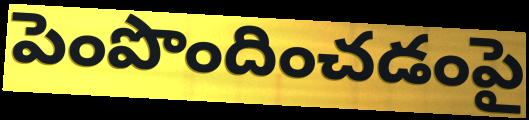
పెంపొందించడంపై